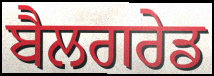
ਬੈਲਗਰੇਡ